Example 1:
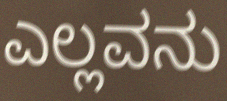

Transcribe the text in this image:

ಎಲ್ಲವನು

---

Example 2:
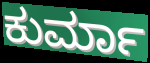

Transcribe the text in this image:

ಕುರ್ಮಾ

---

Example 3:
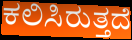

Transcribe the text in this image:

ಕಲಿಸಿರುತ್ತದೆ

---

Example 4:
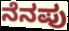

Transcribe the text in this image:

ನೆನಪು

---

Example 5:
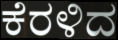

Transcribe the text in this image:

ಕೆರಳಿದ